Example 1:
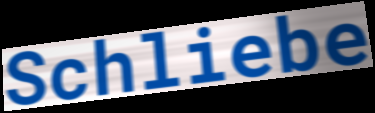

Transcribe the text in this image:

Schliebe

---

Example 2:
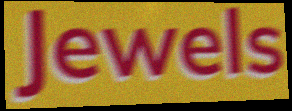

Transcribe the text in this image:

Jewels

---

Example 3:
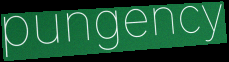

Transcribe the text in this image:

pungency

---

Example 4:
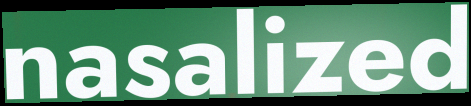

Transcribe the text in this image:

nasalized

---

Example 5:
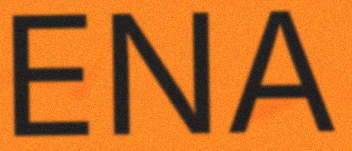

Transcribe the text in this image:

ENA